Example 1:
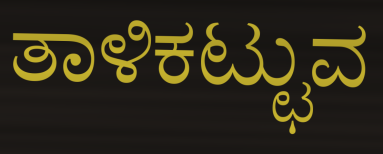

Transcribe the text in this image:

ತಾಳಿಕಟ್ಟುವ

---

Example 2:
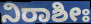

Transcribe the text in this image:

ನಿರಾಶೀಃ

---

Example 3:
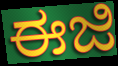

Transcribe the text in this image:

ಈಜಿ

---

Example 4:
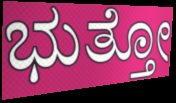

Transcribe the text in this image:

ಭುತ್ತೋ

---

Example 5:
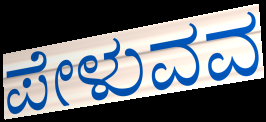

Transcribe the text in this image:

ಪೇಳುವವ